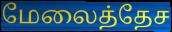
மேலைத்தேச